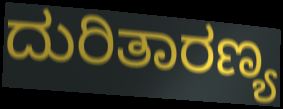
ದುರಿತಾರಣ್ಯ